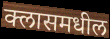
क्लासमधील